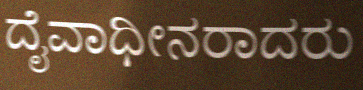
ದೈವಾಧೀನರಾದರು